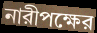
নারীপক্ষের